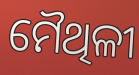
ମୈଥିଳୀ